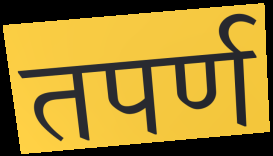
तपर्ण